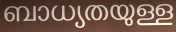
ബാധ്യതയുള്ള